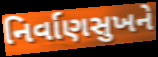
નિર્વાણસુખને